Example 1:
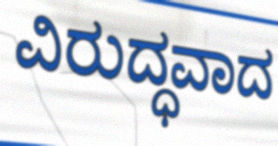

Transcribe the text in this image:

ವಿರುದ್ಧವಾದ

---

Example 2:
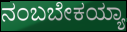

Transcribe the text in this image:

ನಂಬಬೇಕಯ್ಯಾ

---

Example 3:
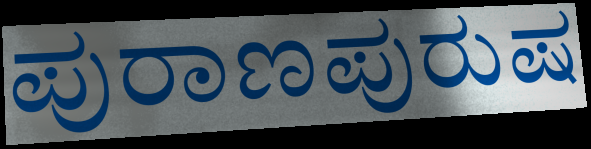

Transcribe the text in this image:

ಪುರಾಣಪುರುಷ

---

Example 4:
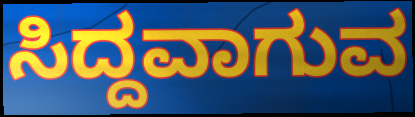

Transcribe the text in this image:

ಸಿದ್ದವಾಗುವ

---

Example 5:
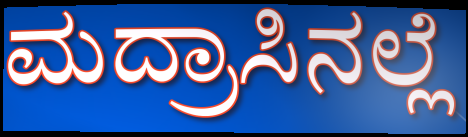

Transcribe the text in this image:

ಮದ್ರಾಸಿನಲ್ಲೆ